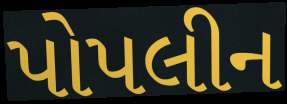
પોપલીન